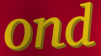
ond